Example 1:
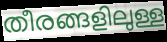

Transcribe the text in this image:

തീരങ്ങളിലുള്ള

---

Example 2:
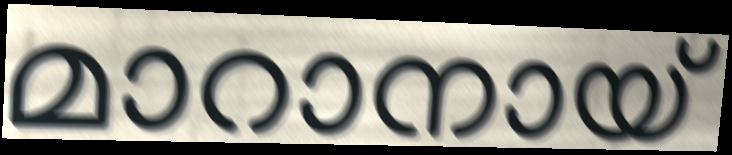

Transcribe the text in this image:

മാറാനായ്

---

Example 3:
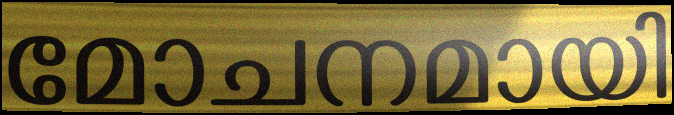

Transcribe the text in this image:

മോചനമായി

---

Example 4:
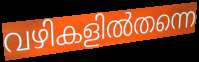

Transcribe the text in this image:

വഴികളിൽതന്നെ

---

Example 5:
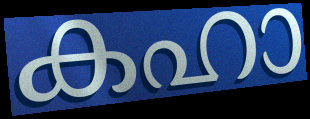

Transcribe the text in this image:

കഹാ